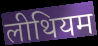
लीथियम